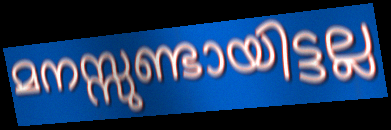
മനസ്സുണ്ടായിട്ടല്ല